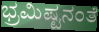
ಭ್ರಮಿಷ್ಟನಂತೆ